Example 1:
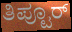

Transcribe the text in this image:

ತಿಪ್ಟೂರ್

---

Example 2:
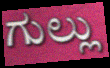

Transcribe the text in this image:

ಗುಲ್ಲು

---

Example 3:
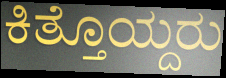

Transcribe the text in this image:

ಕಿತ್ತೊಯ್ದರು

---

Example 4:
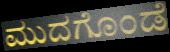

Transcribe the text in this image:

ಮುದಗೊಂಡೆ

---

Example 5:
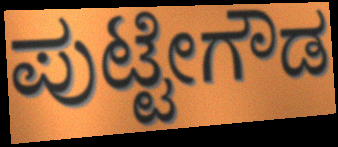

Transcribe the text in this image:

ಪುಟ್ಟೇಗೌಡ